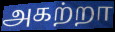
அகற்றா